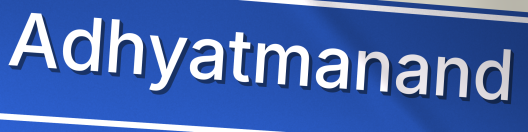
Adhyatmanand